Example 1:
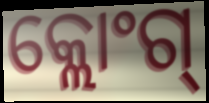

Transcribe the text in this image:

କ୍ଲୋଂଗ୍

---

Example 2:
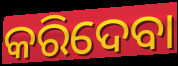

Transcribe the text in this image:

କରିଦେବା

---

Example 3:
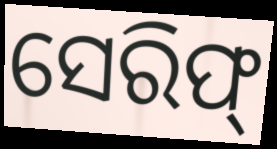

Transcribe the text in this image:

ସେରିଫ୍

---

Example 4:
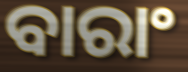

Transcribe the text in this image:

ବାରାଂ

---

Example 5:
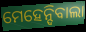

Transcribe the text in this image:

ମେହେନ୍ଦିବାଲା